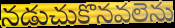
నడుచుకొనవలెను